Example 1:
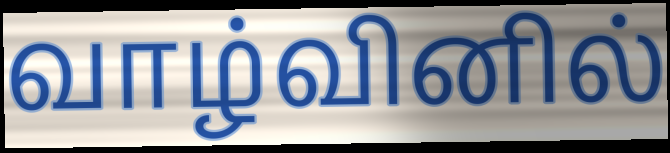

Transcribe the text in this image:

வாழ்வினில்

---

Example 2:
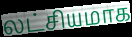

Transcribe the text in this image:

லட்சியமாக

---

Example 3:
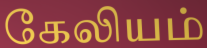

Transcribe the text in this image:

கேலியம்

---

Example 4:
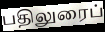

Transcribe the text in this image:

பதிலுரைப்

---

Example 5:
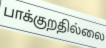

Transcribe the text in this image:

பாக்குறதில்லை